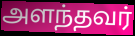
அளந்தவர்